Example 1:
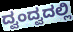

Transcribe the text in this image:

ದ್ವಂದ್ವದಲ್ಲಿ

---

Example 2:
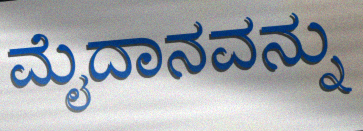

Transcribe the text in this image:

ಮೈದಾನವನ್ನು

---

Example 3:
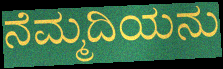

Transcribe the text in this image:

ನೆಮ್ಮದಿಯನು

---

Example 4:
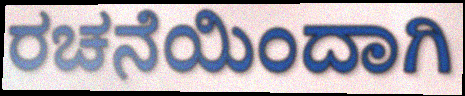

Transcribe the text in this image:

ರಚನೆಯಿಂದಾಗಿ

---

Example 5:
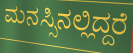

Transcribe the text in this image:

ಮನಸ್ಸಿನಲ್ಲಿದ್ದರೆ